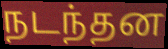
நடந்தன